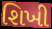
શિખી